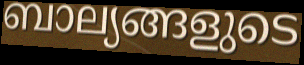
ബാല്യങ്ങളുടെ